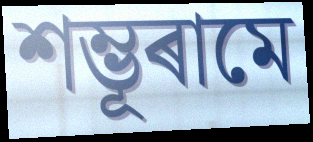
শম্ভূৰামে